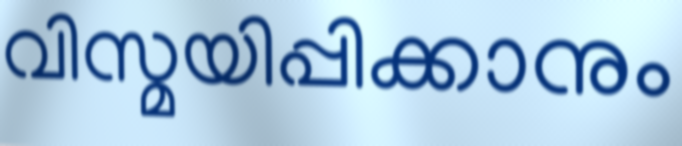
വിസ്മയിപ്പിക്കാനും